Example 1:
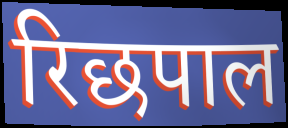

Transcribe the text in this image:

रिछपाल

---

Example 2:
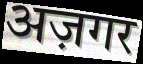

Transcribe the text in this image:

अज़गर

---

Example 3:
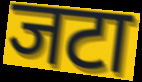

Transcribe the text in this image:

जटा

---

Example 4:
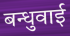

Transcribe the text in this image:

बन्धुवाई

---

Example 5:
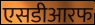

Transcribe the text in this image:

एसडीआरफ